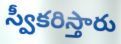
స్వీకరిస్తారు